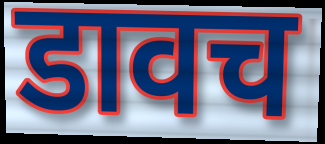
डावच